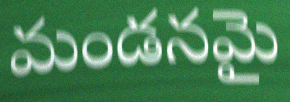
మండనమై